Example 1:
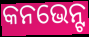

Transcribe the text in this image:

କନଭେନ୍ଟ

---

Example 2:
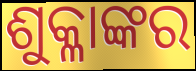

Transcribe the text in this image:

ଶୁକ୍ଳାଙ୍କର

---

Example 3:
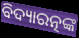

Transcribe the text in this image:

ବିଦ୍ୟାରତ୍ନଙ୍କ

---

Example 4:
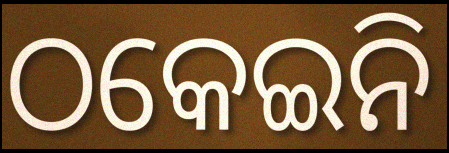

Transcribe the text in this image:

ଠକେଇନି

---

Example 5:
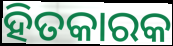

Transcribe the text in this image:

ହିତକାରକ